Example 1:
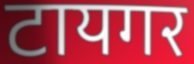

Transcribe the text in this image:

टायगर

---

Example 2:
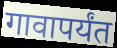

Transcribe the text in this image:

गावापर्यंत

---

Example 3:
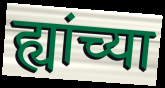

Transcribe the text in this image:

ह्यांच्या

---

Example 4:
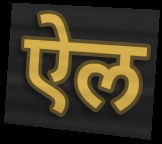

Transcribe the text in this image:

ऐल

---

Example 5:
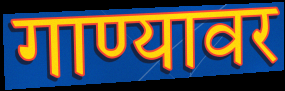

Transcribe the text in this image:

गाण्यावर